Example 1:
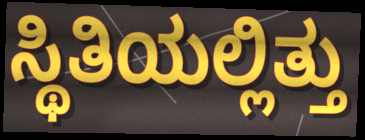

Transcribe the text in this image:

ಸ್ಥಿತಿಯಲ್ಲಿತ್ತು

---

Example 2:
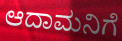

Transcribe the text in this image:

ಆದಾಮನಿಗೆ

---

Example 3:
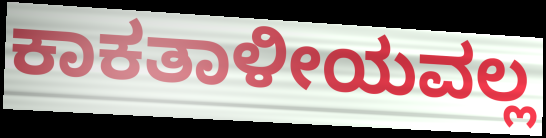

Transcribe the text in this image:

ಕಾಕತಾಳೀಯವಲ್ಲ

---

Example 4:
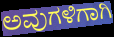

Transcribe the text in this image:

ಅವುಗಳಿಗಾಗಿ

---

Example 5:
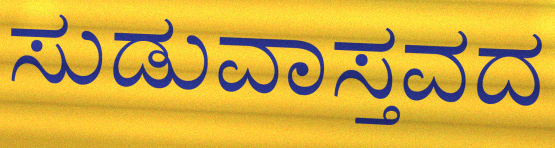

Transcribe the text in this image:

ಸುಡುವಾಸ್ತವದ